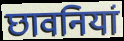
छावनियां